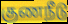
குணநீடு